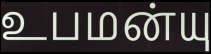
உபமன்யு